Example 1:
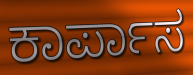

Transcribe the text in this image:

ಕಾರ್ಪಾಸ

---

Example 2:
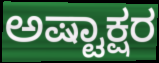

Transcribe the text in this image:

ಅಷ್ಟಾಕ್ಷರ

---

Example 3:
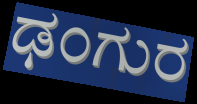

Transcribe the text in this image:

ಢಂಗುರ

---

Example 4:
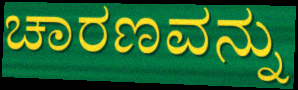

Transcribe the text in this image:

ಚಾರಣವನ್ನು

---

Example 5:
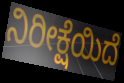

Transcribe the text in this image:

ನಿರೀಕ್ಷೆಯಿದೆ